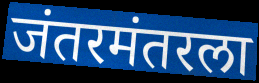
जंतरमंतरला